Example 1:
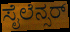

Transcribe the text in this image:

ಸೈಲೆನ್ಸರ್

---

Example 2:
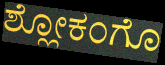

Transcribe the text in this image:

ಶ್ಲೋಕಂಗೊ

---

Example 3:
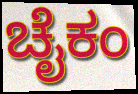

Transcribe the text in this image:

ಚೈಕಂ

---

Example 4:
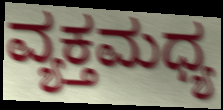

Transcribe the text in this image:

ವ್ಯಕ್ತಮಧ್ಯ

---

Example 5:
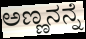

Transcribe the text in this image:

ಅಣ್ಣನನ್ನೆ